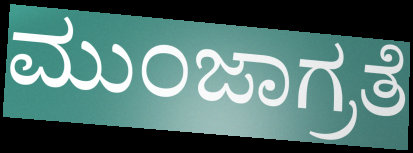
ಮುಂಜಾಗ್ರತೆ